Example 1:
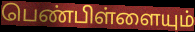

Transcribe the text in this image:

பெண்பிள்ளையும்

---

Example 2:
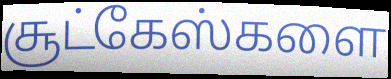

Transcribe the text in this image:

சூட்கேஸ்களை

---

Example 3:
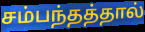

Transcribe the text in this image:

சம்பந்தத்தால்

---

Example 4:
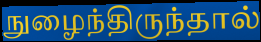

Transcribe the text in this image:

நுழைந்திருந்தால்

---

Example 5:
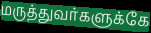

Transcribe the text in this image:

மருத்துவர்களுக்கே